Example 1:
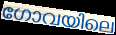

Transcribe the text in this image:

ഗോവയിലെ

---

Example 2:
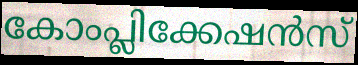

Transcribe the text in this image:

കോംപ്ലിക്കേഷൻസ്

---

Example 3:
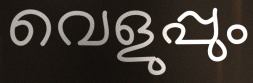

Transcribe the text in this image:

വെളുപ്പും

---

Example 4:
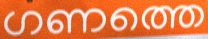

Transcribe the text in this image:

ഗണത്തെ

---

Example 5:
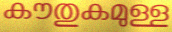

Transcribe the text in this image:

കൗതുകമുള്ള